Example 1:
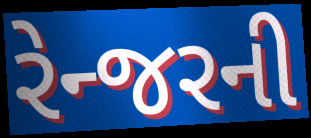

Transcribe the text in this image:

રેન્જરની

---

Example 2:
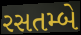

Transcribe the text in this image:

રસતમ્બે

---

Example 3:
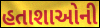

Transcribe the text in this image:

હતાશાઓની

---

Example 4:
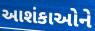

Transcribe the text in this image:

આશંકાઓને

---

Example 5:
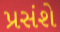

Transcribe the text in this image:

પ્રસંશે